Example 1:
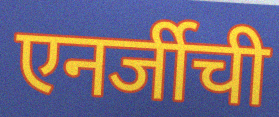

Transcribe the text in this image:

एनर्जीची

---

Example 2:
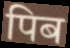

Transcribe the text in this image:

पिब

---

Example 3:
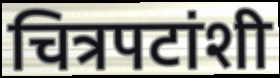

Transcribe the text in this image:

चित्रपटांशी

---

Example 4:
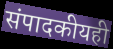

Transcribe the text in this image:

संपादकीयही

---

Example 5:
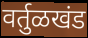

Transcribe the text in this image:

वर्तुळखंड